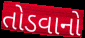
તોડવાનો